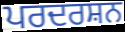
ਪਰਦਰਸ਼ਨ